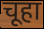
चूहा